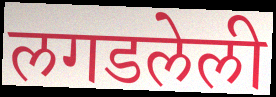
लगडलेली